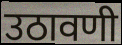
उठावणी